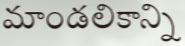
మాండలికాన్ని